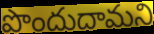
పొందుదామని